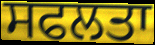
ਸਫਲਤਾ